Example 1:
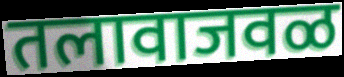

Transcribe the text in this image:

तलावाजवळ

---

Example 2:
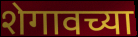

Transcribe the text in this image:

शेगावच्या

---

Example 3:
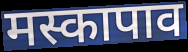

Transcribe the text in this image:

मस्कापाव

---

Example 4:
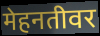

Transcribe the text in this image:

मेहनतीवर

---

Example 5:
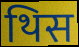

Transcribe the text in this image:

थिस